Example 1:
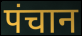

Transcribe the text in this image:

पंचान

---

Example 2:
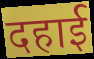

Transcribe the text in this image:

दहाई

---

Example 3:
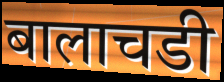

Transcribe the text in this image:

बालाचडी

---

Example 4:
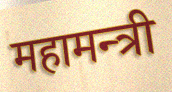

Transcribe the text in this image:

महामन्त्री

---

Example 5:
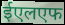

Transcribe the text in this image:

ईएलएफ